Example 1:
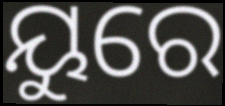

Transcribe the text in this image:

ୟୁରେ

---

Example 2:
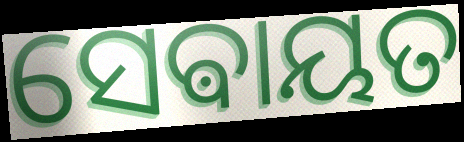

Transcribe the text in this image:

ସେଵାୟତ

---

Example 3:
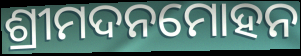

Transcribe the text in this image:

ଶ୍ରୀମଦନମୋହନ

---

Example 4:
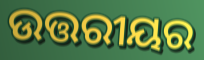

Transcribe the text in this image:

ଉତ୍ତରୀୟର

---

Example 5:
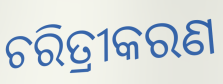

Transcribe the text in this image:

ଚରିତ୍ରୀକରଣ